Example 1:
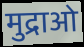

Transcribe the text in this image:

मुद्राओ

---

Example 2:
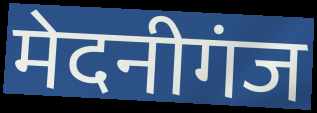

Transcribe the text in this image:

मेदनीगंज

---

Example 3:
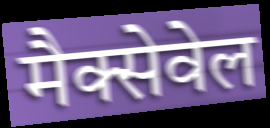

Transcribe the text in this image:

मैक्सेवेल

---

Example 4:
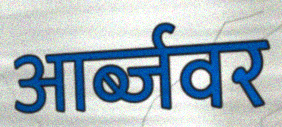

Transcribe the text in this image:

आर्ब्जवर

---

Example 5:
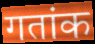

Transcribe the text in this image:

गतांक